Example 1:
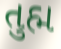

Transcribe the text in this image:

તુહ્મ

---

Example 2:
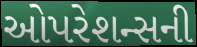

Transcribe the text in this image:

ઓપરેશન્સની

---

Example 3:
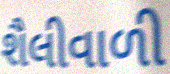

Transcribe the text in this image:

શૈલીવાળી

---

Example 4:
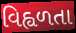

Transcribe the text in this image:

વિહ્વળતા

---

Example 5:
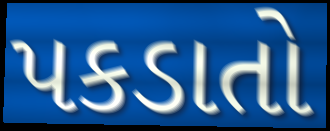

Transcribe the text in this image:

પકડાતો